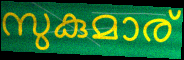
സുകുമാര്